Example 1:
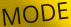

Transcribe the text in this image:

MODE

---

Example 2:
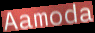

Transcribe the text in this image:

Aamoda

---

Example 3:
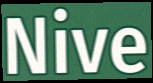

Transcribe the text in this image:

Nive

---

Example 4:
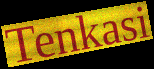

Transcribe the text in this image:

Tenkasi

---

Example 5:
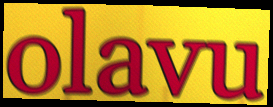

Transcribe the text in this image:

olavu